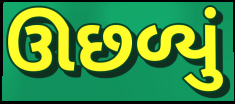
ઊછળ્યું